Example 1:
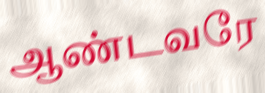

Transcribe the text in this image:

ஆண்டவரே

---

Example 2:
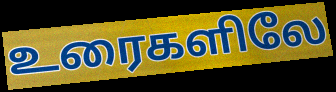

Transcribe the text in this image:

உரைகளிலே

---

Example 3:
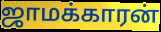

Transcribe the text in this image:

ஜாமக்காரன்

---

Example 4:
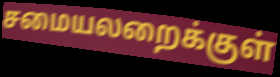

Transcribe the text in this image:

சமையலறைக்குள்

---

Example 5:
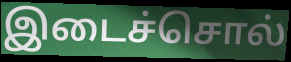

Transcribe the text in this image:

இடைச்சொல்